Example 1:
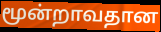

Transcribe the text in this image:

மூன்றாவதான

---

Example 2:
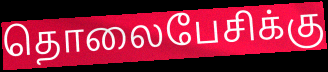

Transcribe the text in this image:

தொலைபேசிக்கு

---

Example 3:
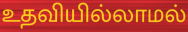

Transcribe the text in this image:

உதவியில்லாமல்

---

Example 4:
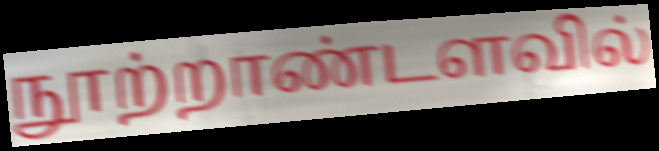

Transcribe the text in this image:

நூற்றாண்டளவில்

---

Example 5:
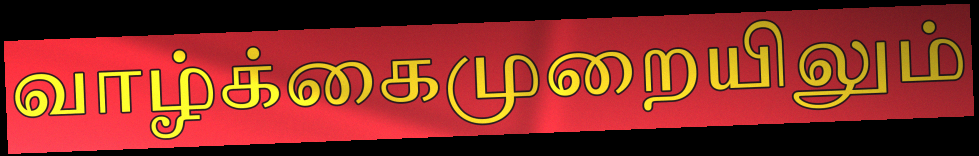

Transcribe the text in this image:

வாழ்க்கைமுறையிலும்